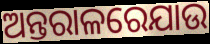
ଅନ୍ତରାଳରେଯାଉ